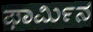
ಫಾರ್ಮಿನ